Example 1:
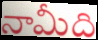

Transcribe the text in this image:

నామీది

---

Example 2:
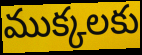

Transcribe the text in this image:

ముక్కలకు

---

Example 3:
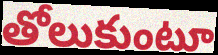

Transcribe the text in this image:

తోలుకుంటూ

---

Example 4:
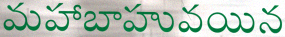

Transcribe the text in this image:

మహాబాహువయిన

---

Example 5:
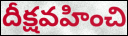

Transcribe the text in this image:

దీక్షవహించి